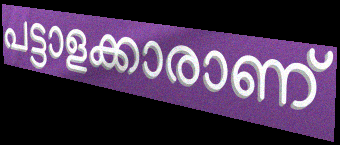
പട്ടാളക്കാരാണ്